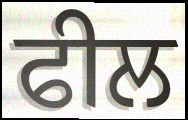
ਫੀਲ